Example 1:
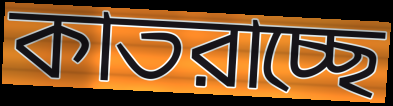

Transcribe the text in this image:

কাতরাচ্ছে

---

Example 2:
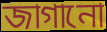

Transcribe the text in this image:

জাগানো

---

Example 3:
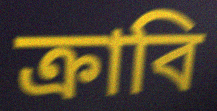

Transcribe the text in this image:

ক্রাবি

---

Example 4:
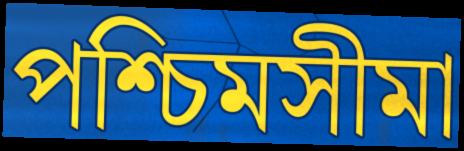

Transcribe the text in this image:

পশ্চিমসীমা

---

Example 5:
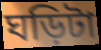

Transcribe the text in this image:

ঘড়িটা